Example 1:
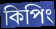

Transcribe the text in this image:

কিপিং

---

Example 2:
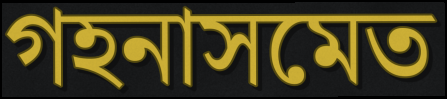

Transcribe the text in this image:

গহনাসমেত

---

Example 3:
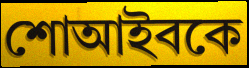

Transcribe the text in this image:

শোআইবকে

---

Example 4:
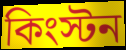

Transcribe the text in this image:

কিংস্টন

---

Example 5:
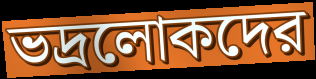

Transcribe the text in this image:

ভদ্রলোকদের